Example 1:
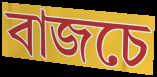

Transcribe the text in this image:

বাজচে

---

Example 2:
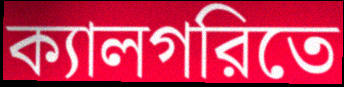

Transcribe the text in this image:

ক্যালগরিতে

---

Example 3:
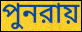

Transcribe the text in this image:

পুনরায়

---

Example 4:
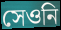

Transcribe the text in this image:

সেওনি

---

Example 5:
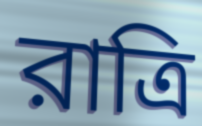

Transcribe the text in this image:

রাত্রি